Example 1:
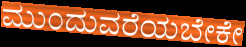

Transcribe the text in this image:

ಮುಂದುವರೆಯಬೇಕೇ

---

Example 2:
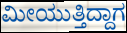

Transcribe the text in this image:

ಮೀಯುತ್ತಿದ್ದಾಗ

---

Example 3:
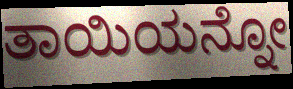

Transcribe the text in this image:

ತಾಯಿಯನ್ನೋ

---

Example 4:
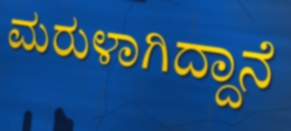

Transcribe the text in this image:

ಮರುಳಾಗಿದ್ದಾನೆ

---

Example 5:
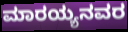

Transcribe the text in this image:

ಮಾರಯ್ಯನವರ